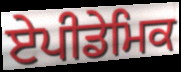
ਏਪੀਡੇਮਿਕ